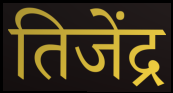
तिजेंद्र